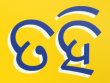
ତହି